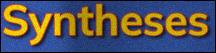
Syntheses